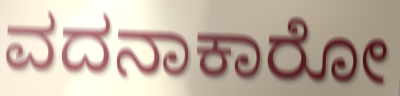
ವದನಾಕಾರೋ